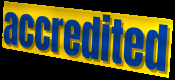
accredited